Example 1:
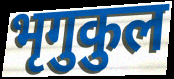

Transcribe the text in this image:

भृगुकुल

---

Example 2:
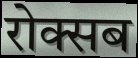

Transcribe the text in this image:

रोक्सब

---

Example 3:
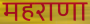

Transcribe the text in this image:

महराणा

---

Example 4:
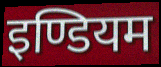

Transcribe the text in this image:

इण्डियम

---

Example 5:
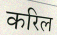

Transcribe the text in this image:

करिल